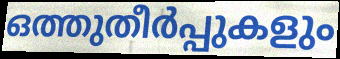
ഒത്തുതീർപ്പുകളും